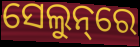
ସେଲୁନ୍‌ରେ